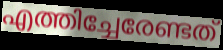
എത്തിച്ചേരേണ്ടത്